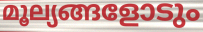
മൂല്യങ്ങളോടും